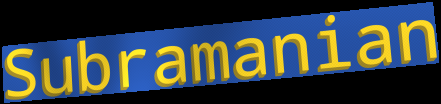
Subramanian